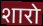
शारो